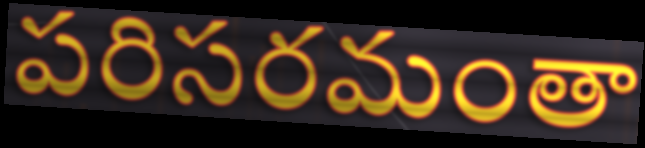
పరిసరమంతా